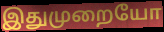
இதுமுறையோ